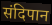
संदिपान